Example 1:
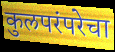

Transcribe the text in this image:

कुलपरंपरेचा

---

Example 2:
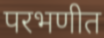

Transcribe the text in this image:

परभणीत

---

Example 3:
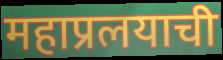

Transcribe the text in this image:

महाप्रलयाची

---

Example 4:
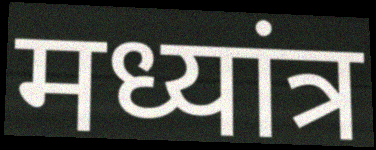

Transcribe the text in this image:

मध्यांत्र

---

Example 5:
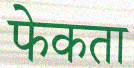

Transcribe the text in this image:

फेकता